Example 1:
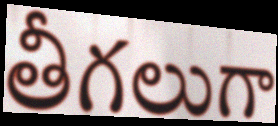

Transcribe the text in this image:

తీగలుగా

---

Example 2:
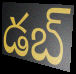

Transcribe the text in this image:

డబ్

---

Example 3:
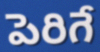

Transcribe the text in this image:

పెరిగే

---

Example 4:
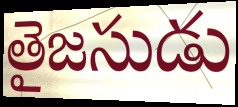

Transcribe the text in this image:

తైజసుడు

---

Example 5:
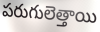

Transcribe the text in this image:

పరుగులెత్తాయి